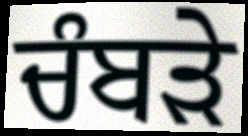
ਚੰਬੜੇ